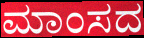
ಮಾಂಸದ